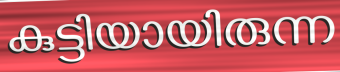
കുട്ടിയായിരുന്ന